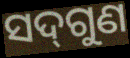
ସଦ୍‌ଗୁଣ